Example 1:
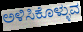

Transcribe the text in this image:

ಅಳಿಸಿಕೊಳ್ಳುವ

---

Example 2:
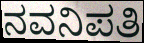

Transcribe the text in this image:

ನವನಿಪತಿ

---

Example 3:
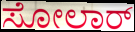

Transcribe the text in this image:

ಸೋಲಾರ್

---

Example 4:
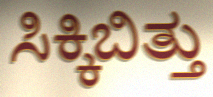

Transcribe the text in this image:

ಸಿಕ್ಕಿಬಿತ್ತು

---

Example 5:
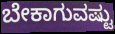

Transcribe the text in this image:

ಬೇಕಾಗುವಷ್ಟು